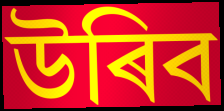
উৰিব